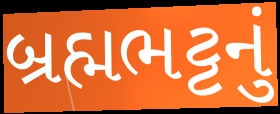
બ્રહ્મભટ્ટનું